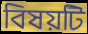
বিষয়টি